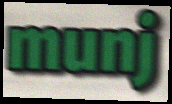
munj